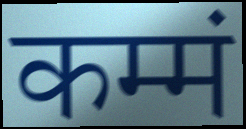
कम्मं